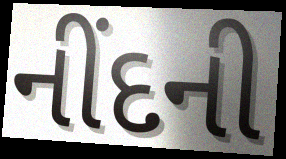
નીંદની